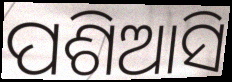
ପଶିଆସି